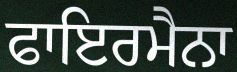
ਫਾਇਰਮੈਨਾ